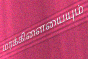
மரக்கிளையையும்